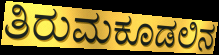
ತಿರುಮಕೂಡಲಿನ